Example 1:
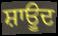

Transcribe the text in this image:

ਸ਼ਾਊਦ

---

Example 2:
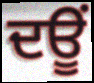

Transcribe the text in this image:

ਦਊਂ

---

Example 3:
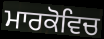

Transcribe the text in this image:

ਮਾਰਕੋਵਿਚ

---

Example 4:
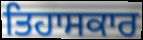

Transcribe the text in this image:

ਤਿਹਾਸਕਾਰ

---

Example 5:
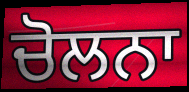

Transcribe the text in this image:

ਚੋਲਨਾ